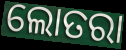
ଲୋତରା